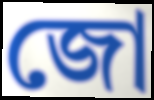
জো